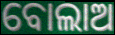
ବୋଲାଅ